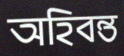
অহিবন্ত